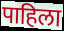
पाहिला